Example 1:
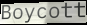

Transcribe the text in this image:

Boycott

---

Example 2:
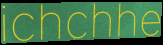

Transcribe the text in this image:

ichchhe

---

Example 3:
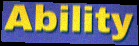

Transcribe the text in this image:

Ability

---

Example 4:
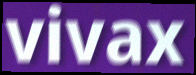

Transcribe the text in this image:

vivax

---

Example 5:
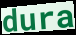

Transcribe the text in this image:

dura